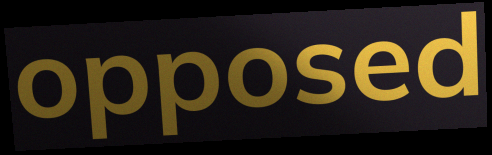
opposed